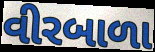
વીરબાળા